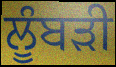
ਲੂੰਬੜੀ